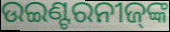
ଉଇଣ୍ଟରନୀଜ୍‌ଙ୍କ